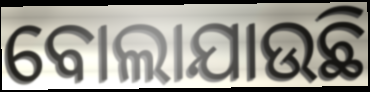
ବୋଲାଯାଉଛି